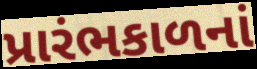
પ્રારંભકાળનાં